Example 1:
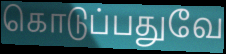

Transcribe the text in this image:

கொடுப்பதுவே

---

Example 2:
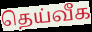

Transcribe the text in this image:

தெய்வீக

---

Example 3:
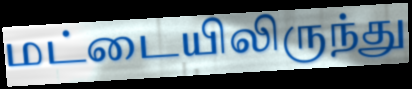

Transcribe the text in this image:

மட்டையிலிருந்து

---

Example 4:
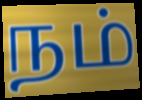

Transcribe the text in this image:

நம்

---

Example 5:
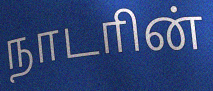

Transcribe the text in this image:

நாடரின்